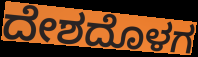
ದೇಶದೊಳಗ